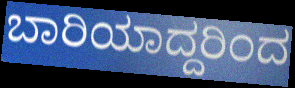
ಬಾರಿಯಾದ್ದರಿಂದ